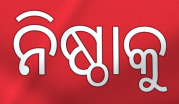
ନିଷ୍ଠାକୁ